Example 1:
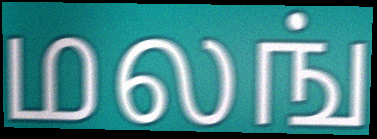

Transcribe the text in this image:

மலங்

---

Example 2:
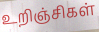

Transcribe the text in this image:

உறிஞ்சிகள்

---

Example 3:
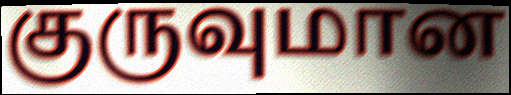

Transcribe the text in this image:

குருவுமான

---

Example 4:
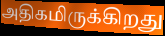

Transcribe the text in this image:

அதிகமிருக்கிறது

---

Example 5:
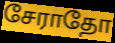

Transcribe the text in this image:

சேராதோ